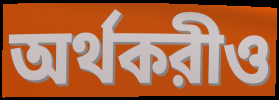
অর্থকরীও